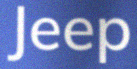
Jeep